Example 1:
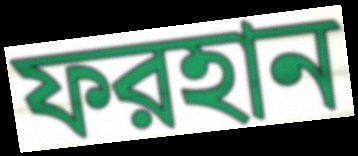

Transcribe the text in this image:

ফরহান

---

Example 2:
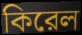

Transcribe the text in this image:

কিরেল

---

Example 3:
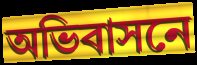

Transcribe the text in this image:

অভিবাসনে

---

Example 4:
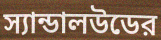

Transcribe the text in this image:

স্যান্ডালউডের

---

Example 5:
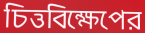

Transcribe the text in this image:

চিত্তবিক্ষেপের